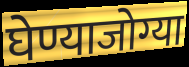
घेण्याजोग्या